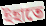
ইহাতে